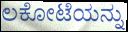
ಲಕೋಟೆಯನ್ನು